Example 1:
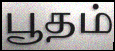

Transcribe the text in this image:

பூதம்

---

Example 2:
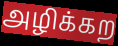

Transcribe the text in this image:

அழிக்கற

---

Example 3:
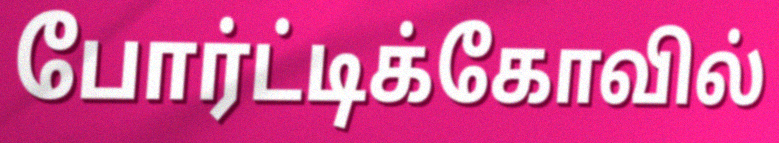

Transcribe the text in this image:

போர்ட்டிக்கோவில்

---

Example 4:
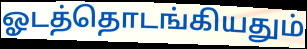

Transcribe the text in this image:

ஓடத்தொடங்கியதும்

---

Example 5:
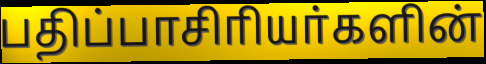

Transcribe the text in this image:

பதிப்பாசிரியர்களின்